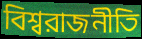
বিশ্বরাজনীতি